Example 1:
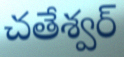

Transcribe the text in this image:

చతేశ్వర్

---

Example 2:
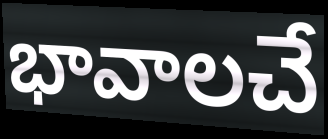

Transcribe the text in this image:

భావాలచే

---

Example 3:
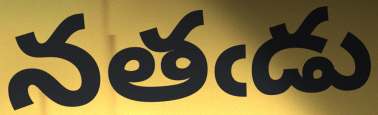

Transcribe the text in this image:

నతఁడు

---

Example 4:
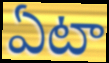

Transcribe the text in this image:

ఏటా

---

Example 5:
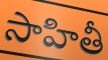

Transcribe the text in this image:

సాహితీ